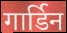
गार्डिन